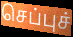
செப்புச்